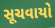
સૂચવાયો